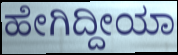
ಹೇಗಿದ್ದೀಯಾ